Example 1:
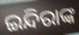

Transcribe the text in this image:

ଇନ୍ଦିରାଙ୍କ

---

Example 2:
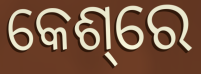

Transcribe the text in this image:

କେଶ୍‌ରେ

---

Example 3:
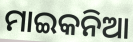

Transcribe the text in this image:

ମାଇକନିଆ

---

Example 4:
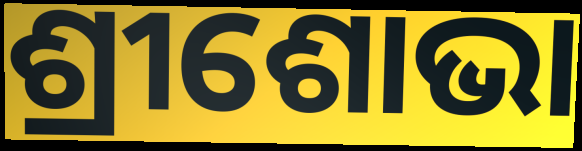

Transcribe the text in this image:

ଶ୍ରୀଶୋଭା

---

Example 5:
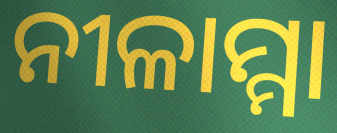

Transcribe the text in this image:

ନୀଳାମ୍ମା